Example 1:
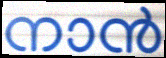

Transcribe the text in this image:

നാൻ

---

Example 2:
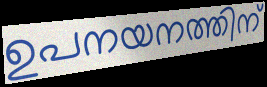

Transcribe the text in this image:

ഉപനയനത്തിന്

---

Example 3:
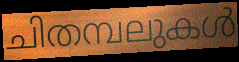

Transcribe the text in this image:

ചിതമ്പലുകൾ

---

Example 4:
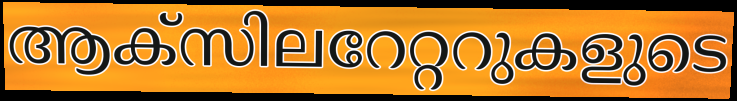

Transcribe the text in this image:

ആക്സിലറേറ്ററുകളുടെ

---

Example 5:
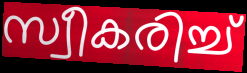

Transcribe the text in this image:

സ്വീകരിച്ച്